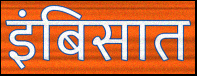
इंबिसात